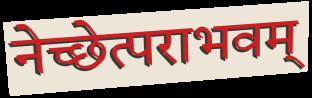
नेच्छेत्पराभवम्